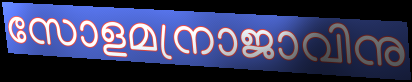
സോളമന്രാജാവിനു